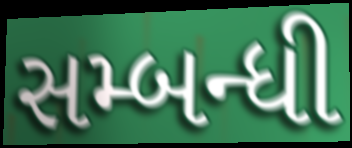
સમ્બન્ધી